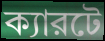
ক্যারটে